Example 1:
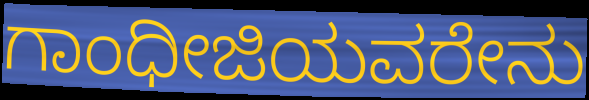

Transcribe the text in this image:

ಗಾಂಧೀಜಿಯವರೇನು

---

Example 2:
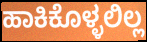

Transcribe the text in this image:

ಹಾಕಿಕೊಳ್ಳಲಿಲ್ಲ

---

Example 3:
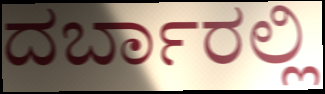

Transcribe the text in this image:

ದರ್ಬಾರಲ್ಲಿ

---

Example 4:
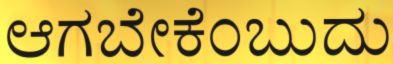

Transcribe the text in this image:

ಆಗಬೇಕೆಂಬುದು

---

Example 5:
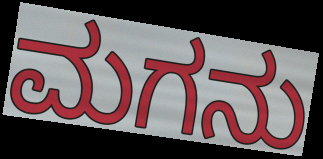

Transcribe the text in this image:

ಮಗನು